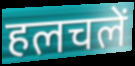
हलचलें